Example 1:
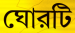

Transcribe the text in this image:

ঘোরটি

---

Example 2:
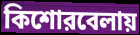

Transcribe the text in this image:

কিশোরবেলায়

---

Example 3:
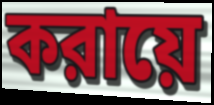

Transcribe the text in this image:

করায়ে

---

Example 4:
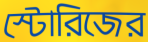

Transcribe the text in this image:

স্টোরিজের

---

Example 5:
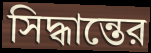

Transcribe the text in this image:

সিদ্ধান্তের